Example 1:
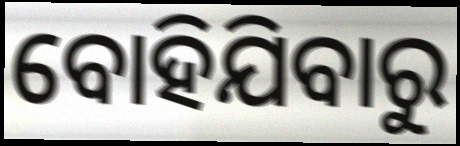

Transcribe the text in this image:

ବୋହିଯିବାରୁ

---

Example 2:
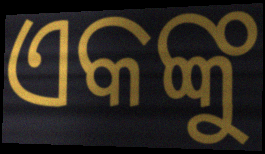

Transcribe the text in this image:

ଏକଙ୍କୁ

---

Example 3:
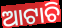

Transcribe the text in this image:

ଆଟାଚି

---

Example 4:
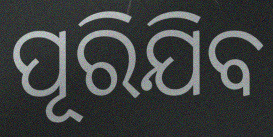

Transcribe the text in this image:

ପୂରିଯିବ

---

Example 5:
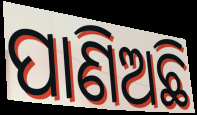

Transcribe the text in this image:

ପାଣିଅଛି